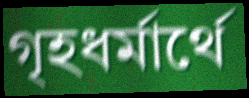
গৃহধর্মার্থে